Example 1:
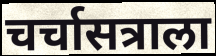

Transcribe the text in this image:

चर्चासत्राला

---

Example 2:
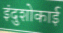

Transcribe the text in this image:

इंदुशोकाई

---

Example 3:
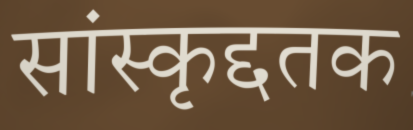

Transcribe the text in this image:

सांस्कृद्दतक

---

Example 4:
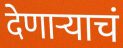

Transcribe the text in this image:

देणाऱ्याचं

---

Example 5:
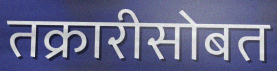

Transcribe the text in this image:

तक्रारीसोबत